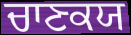
ਚਾਣਕਯ